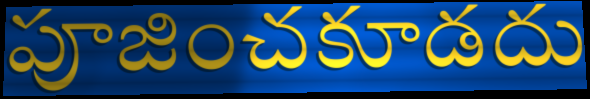
పూజించకూడదు